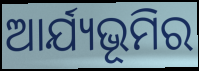
ଆର୍ଯ୍ୟଭୂମିର